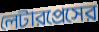
লেটারপ্রেসের